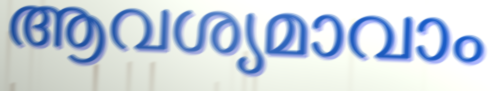
ആവശ്യമാവാം